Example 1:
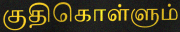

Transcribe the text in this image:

குதிகொள்ளும்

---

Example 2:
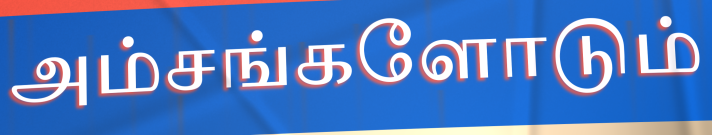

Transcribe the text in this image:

அம்சங்களோடும்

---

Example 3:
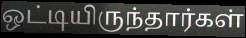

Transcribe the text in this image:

ஒட்டியிருந்தார்கள்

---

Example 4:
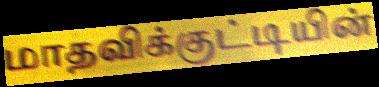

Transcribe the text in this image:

மாதவிக்குட்டியின்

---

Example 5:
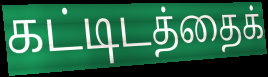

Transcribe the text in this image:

கட்டிடத்தைக்